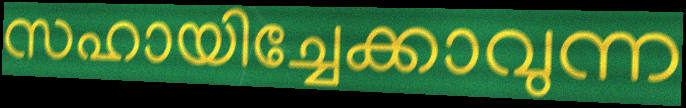
സഹായിച്ചേക്കാവുന്ന